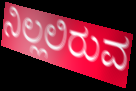
ನಿಲ್ಲಲಿರುವ